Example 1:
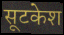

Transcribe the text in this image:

सूटकेश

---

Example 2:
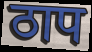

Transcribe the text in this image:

ठाप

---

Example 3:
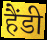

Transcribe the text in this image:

हैंडी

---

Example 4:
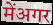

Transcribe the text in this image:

मेंअगर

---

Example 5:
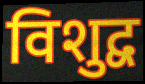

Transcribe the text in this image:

विशुद्व